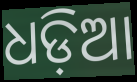
ଧଡ଼ିଆ